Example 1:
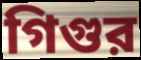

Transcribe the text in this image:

গিগুর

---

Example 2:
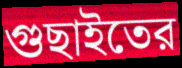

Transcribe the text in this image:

গুছাইতের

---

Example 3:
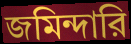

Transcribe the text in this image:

জমিন্দারি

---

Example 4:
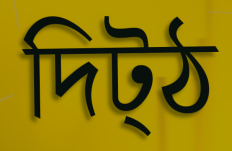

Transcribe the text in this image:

দিট্ঠ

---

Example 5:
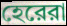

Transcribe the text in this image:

হেরেরা